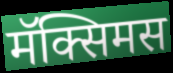
मॅक्सिमस